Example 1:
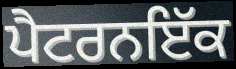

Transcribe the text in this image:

ਪੈਟਰਨਇੱਕ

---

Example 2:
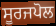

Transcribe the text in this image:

ਸੂਰਜਪੋਲ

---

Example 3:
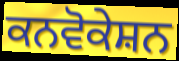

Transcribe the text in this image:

ਕਨਵੋਕੇਸ਼ਨ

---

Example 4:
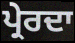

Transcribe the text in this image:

ਪ੍ਰੇਰਦਾ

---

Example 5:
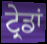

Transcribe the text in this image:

ਟ੍ਰੇਡਾਂ